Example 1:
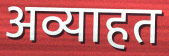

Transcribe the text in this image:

अव्याहत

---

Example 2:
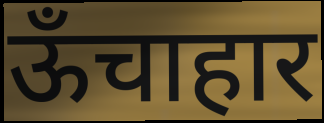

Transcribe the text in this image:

ऊँचाहार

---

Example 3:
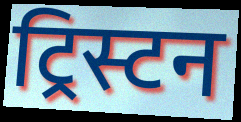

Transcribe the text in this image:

ट्रिस्टन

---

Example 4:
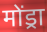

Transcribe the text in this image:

मोंड्रा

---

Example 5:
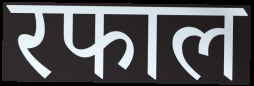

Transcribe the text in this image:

रफाल